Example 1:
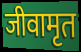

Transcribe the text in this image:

जीवामृत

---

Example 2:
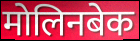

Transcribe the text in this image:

मोलिनबेक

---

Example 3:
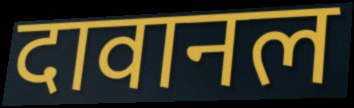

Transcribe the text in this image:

दावानल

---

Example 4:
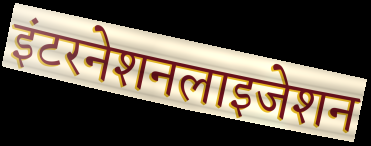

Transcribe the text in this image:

इंटरनेशनलाइजेशन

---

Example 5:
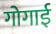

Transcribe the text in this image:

गोगाई